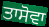
ਤਾਸੋਵਾ